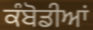
ਕੰਬੋਡੀਆਂ